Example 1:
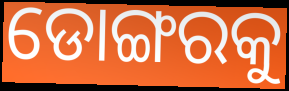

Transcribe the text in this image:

ଡୋଙ୍ଗରକୁ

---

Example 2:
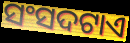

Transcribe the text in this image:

ସଂସଦଟାଏ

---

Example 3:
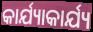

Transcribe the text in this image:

କାର୍ଯ୍ୟାକାର୍ଯ୍ୟ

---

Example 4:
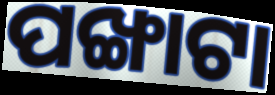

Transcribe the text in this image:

ପଙ୍ଖାଟା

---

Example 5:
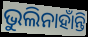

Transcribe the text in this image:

ଭୁଲିନାହାଁନ୍ତି